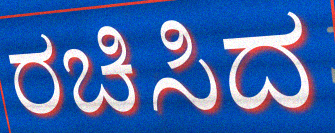
ರಚಿಸಿದ